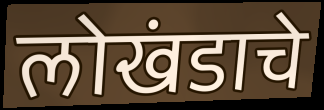
लोखंडाचे